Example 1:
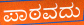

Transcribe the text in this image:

ಪಾಠವದು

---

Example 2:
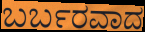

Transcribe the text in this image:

ಬರ್ಬರವಾದ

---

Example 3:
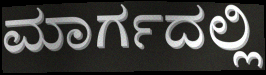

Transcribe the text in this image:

ಮಾರ್ಗದಲ್ಲಿ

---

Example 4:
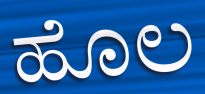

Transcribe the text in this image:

ಹೊಲ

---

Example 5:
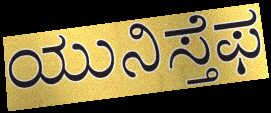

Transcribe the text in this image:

ಯುನಿಸ್ತೆಫ